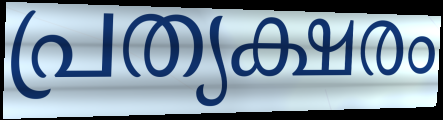
പ്രത്യക്ഷരം